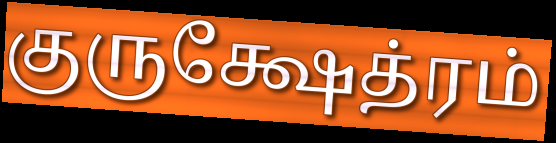
குருக்ஷேத்ரம்